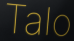
Talo